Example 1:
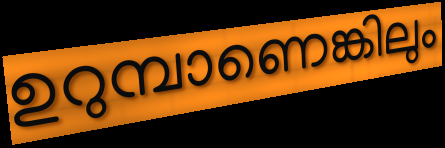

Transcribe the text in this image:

ഉറുമ്പാണെങ്കിലും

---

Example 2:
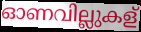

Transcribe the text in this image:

ഓണവില്ലുകള്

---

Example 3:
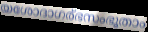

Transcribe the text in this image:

യശോദാഗര്ഭസംഭൂതാം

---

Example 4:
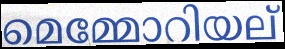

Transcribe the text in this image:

മെമ്മോറിയല്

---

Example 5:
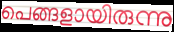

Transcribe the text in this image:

പെങ്ങളായിരുന്നു